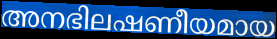
അനഭിലഷണീയമായ